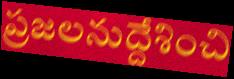
ప్రజలనుద్దేశించి